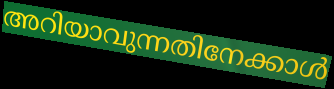
അറിയാവുന്നതിനേക്കാൾ